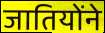
जातियोंने